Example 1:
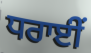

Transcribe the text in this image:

ਧਰਾਈਂ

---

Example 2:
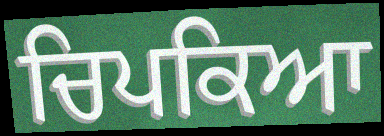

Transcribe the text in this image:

ਚਿਪਕਿਆ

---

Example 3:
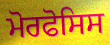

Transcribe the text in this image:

ਮੋਰਫੋਸਿਸ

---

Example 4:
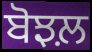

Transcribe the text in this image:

ਬੋਝਲ਼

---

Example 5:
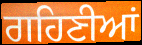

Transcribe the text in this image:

ਗਹਿਣੀਆਂ